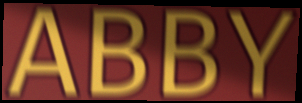
ABBY